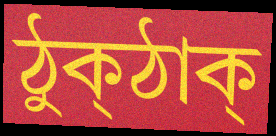
ঠুক্ঠাক্